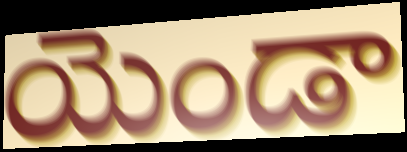
యెండా